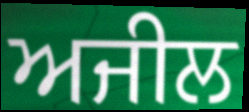
ਅਜੀਲ